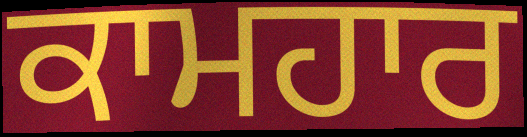
ਕਾਮਹਾਰ